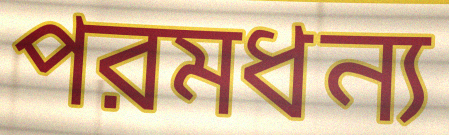
পরমধন্য